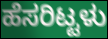
ಹೆಸರಿಟ್ಟಳು